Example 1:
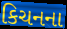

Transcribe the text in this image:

કિચનના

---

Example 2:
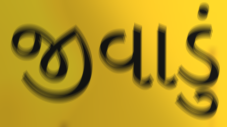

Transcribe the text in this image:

જીવાડું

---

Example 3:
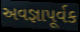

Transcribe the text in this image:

અવજ્ઞાપૂર્વક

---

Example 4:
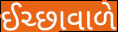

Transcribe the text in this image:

ઈચ્છાવાળે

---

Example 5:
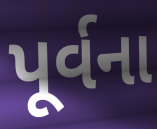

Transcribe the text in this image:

પૂર્વના